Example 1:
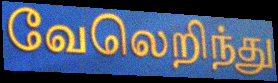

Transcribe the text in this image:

வேலெறிந்து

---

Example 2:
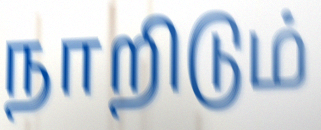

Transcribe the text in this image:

நாறிடும்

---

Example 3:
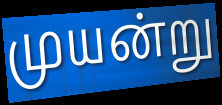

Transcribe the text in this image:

முயன்று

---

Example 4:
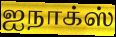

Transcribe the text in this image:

ஐநாக்ஸ்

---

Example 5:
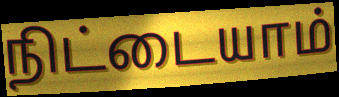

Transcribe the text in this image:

நிட்டையாம்